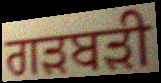
ਗੜਬੜੀ